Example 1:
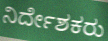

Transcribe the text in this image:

ನಿರ್ದೇಶಕರು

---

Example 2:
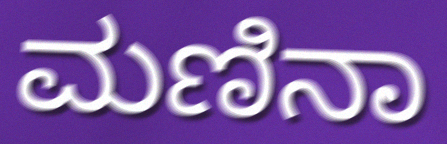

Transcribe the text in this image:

ಮಣಿನಾ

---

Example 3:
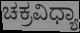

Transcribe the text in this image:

ಚಕ್ರವಿಧ್ಯಾ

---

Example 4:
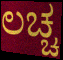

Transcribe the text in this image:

ಲಚ್ಚ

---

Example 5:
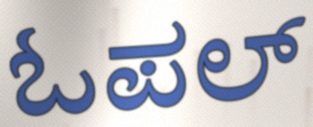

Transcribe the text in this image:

ಓಪಲ್